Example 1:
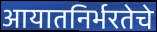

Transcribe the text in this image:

आयातनिर्भरतेचे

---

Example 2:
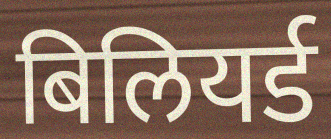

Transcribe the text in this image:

बिलियर्ड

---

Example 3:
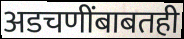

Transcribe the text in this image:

अडचणींबाबतही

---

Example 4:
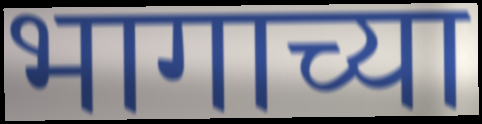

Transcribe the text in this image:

भागाच्या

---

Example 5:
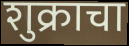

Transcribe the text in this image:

शुक्राचा